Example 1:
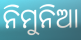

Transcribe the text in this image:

ନିମୁନିଆ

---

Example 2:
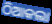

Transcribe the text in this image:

ଠିଆକଲା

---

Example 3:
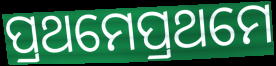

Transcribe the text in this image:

ପ୍ରଥମେପ୍ରଥମେ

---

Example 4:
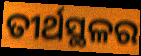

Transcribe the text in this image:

ତୀର୍ଥସ୍ଥଳର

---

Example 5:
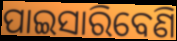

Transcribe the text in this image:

ପାଇସାରିବେଣି